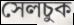
সেলচুক